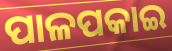
ପାଳପକାଇ